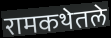
रामकथेतले